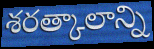
శరత్కాలాన్ని